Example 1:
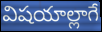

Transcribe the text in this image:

విషయాల్లాగే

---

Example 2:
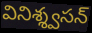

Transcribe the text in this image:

వినిశ్శ్వసన్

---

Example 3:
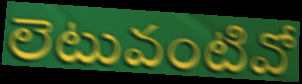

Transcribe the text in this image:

లెటువంటివో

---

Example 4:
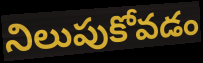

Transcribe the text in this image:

నిలుపుకోవడం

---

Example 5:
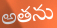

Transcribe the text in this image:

అతను